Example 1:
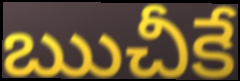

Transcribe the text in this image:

ఋచీకే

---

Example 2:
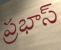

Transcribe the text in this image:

ప్రభాస్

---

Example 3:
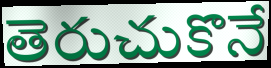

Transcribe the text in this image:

తెరుచుకొనే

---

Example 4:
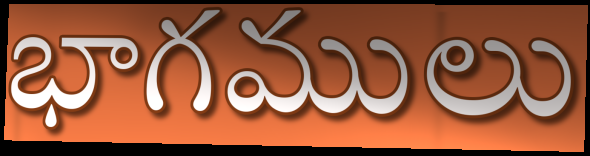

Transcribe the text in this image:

భాగములు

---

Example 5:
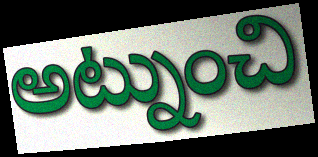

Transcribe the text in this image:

అట్నుంచి